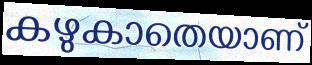
കഴുകാതെയാണ്